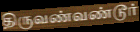
திருவண்வண்டூர்